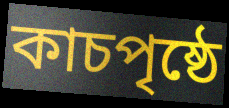
কাচপৃষ্ঠে